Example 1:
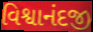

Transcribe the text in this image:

વિશ્વાનંદજી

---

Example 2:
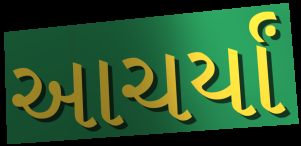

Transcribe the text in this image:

આચર્યાં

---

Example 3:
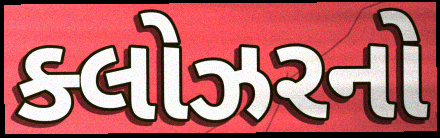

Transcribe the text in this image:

ક્લોઝરનો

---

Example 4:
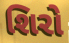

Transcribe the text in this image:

શિરો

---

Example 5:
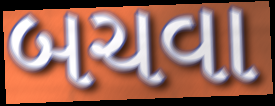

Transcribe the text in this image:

બચવા